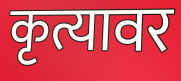
कृत्यावर